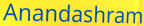
Anandashram